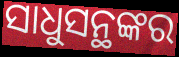
ସାଧୁସନ୍ଥଙ୍କର